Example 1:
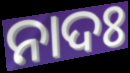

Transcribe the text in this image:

ନାଦଃ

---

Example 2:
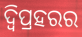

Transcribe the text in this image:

ଦ୍ୱିପ୍ରହରର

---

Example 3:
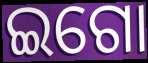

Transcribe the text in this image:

ଇଗୋ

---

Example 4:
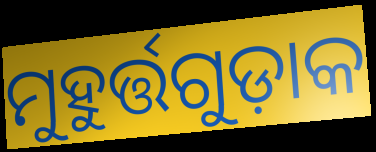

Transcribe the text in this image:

ମୁହୁର୍ତ୍ତଗୁଡ଼ାକ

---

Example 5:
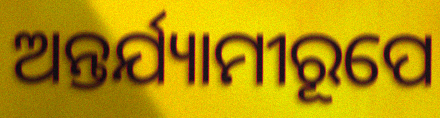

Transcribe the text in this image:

ଅନ୍ତର୍ଯ୍ୟାମୀରୂପେ